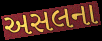
અસલના